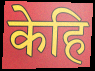
केहि